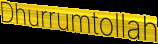
Dhurrumtollah